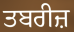
ਤਬਰੀਜ਼